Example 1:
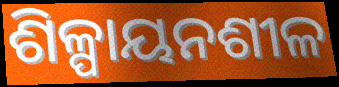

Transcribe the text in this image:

ଶିଳ୍ପାୟନଶୀଳ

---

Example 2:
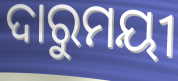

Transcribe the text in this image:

ଦାରୁମୟୀ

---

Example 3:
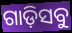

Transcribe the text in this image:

ଗାଡ଼ିସବୁ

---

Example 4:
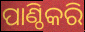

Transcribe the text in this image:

ପାଣ୍ଠିକରି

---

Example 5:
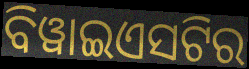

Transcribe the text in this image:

ବିୱାଇଏସଟିର